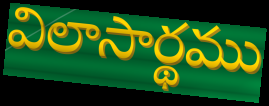
విలాసార్థము